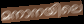
മനാനയിലെ